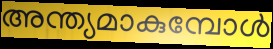
അന്ത്യമാകുമ്പോൾ